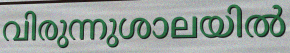
വിരുന്നുശാലയിൽ